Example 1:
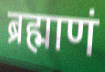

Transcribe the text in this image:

ब्रह्माणं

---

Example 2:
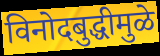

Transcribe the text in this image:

विनोदबुद्धीमुळे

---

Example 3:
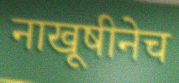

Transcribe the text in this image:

नाखूषीनेच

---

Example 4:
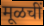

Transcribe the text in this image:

मूळचीं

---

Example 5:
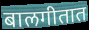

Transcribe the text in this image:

बालगीतात